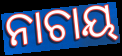
ନାଚାୟ